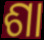
ଶା